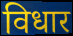
विधार